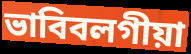
ভাবিবলগীয়া